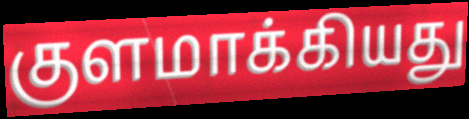
குளமாக்கியது